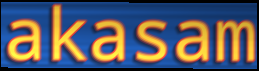
akasam